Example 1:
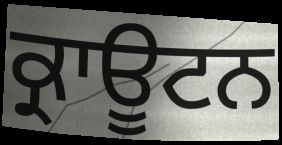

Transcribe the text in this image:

ਕ੍ਰਾਊਟਨ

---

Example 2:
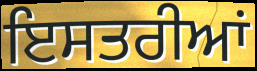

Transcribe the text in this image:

ਇਸਤਰੀਆਂ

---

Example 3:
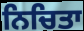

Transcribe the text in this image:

ਨਿਚਿਤਾ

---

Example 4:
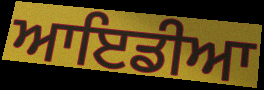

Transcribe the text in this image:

ਆਇਡੀਆ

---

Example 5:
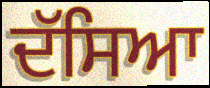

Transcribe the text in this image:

ਦੱਸਿਆ